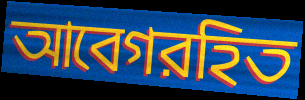
আবেগরহিত